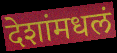
देशांमधलं